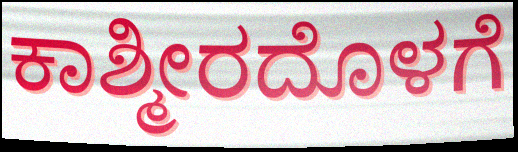
ಕಾಶ್ಮೀರದೊಳಗೆ